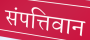
संपत्तिवान